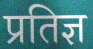
प्रतिज्ञ